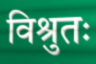
विश्रुतः